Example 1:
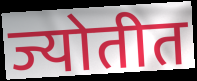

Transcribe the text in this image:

ज्योतीत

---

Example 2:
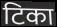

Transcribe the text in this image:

टिका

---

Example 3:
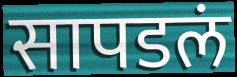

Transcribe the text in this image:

सापडलं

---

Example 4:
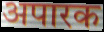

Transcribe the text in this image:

अपारक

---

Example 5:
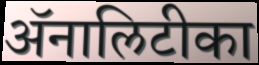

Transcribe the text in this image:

ॲनालिटीका